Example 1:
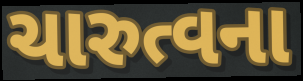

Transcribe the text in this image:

ચારુત્વના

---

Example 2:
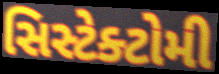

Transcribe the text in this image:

સિસ્ટેક્ટોમી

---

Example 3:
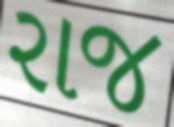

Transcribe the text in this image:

રાજ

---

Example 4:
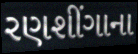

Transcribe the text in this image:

રણશીંગાના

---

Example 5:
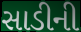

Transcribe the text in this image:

સાડીની